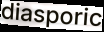
diasporic